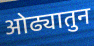
ओढ्यातुन